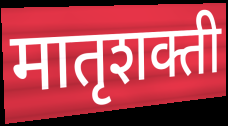
मातृशक्ती